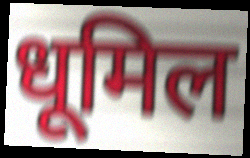
धूमिल